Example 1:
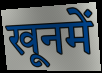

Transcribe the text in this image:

खूनमें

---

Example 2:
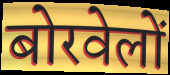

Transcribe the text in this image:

बोरवेलों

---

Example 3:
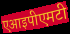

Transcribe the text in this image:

एआइपीएमटी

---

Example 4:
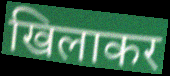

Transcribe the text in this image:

खिलाकर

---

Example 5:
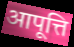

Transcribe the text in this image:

आपूत्ति